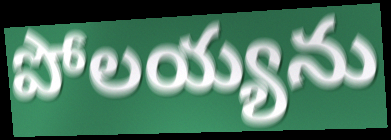
పోలయ్యను